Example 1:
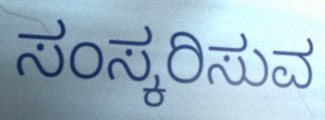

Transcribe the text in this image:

ಸಂಸ್ಕರಿಸುವ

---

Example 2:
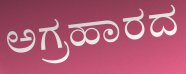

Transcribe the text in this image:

ಅಗ್ರಹಾರದ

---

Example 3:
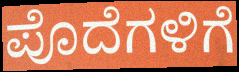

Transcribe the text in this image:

ಪೊದೆಗಳಿಗೆ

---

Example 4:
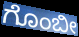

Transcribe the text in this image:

ಗೊಂಬೀ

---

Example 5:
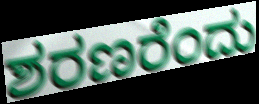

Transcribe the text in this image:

ಶರಣರೆಂದು